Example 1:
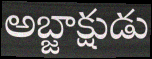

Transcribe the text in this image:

అబ్జాక్షుడు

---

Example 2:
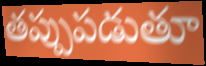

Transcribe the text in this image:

తప్పుపడుతూ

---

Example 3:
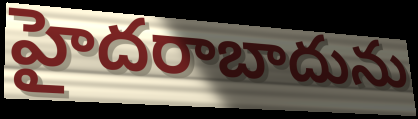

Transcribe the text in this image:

హైదరాబాదును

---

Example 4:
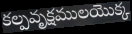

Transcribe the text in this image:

కల్పవృక్షములయొక్క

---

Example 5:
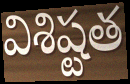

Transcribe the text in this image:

విశిష్టత